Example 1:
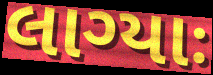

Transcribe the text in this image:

લાગ્યાઃ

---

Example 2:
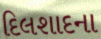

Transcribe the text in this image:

દિલશાદના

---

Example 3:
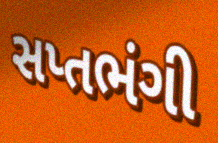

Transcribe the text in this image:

સપ્તભંગી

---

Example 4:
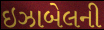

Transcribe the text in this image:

ઇઝાબેલની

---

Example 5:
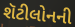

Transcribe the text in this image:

શૅટીલોનની